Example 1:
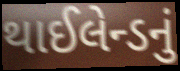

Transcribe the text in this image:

થાઈલેન્ડનું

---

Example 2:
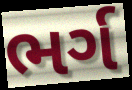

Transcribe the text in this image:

ભર્ગ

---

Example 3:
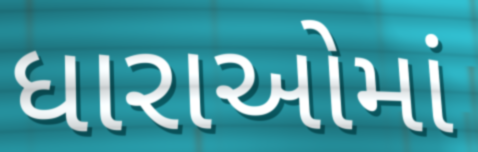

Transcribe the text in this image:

ધારાઓમાં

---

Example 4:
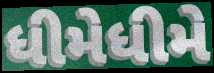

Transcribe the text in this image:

ધીમેધીમે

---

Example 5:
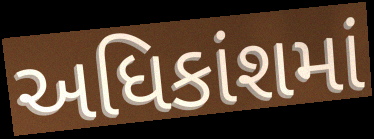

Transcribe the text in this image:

અધિકાંશમાં